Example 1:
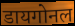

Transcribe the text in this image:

डायगोनल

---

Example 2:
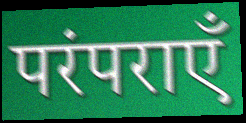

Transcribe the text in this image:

परंपराएँ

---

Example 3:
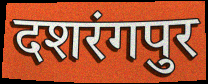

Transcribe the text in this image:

दशरंगपुर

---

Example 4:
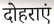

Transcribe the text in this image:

दोहराएं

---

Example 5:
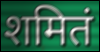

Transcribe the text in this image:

शमितं